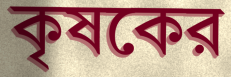
কৃষকের